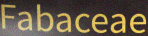
Fabaceae